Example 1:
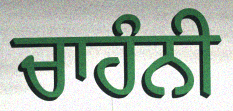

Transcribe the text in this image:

ਚਾਹੰਨੀ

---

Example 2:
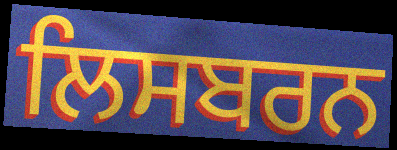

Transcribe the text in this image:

ਲਿਸਬਰਨ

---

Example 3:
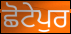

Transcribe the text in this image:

ਛੋਟੇਪੁਰ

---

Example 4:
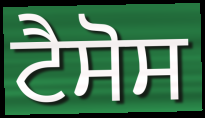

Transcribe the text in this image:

ਟੈਸੋਸ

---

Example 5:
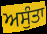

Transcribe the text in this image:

ਅਸੁੰਤਾ